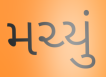
મચ્યું